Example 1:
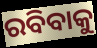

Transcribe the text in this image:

ରବିବାକୁ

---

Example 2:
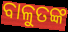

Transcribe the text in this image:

ବାଳୁତଙ୍କ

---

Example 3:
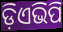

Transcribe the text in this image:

ଡ଼ିଏଭିପି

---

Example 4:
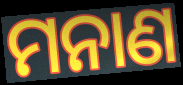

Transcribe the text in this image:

ମନାଣ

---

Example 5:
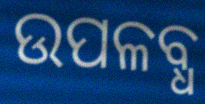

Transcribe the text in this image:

ଉପଳବ୍ଧ